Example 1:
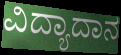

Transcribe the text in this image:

ವಿದ್ಯಾದಾನ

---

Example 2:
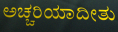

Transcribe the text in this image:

ಅಚ್ಚರಿಯಾದೀತು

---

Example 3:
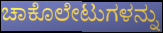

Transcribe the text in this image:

ಚಾಕೊಲೇಟುಗಳನ್ನು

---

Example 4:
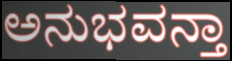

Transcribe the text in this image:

ಅನುಭವನ್ತಾ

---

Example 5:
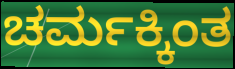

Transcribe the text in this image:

ಚರ್ಮಕ್ಕಿಂತ